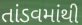
તાંડવમાંથી